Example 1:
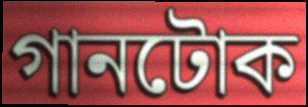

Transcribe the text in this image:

গানটোক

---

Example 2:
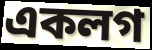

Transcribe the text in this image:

একলগ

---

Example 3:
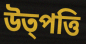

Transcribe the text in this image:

উত্পত্তি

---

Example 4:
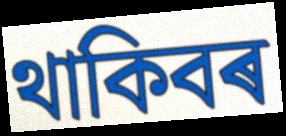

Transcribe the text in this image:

থাকিবৰ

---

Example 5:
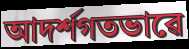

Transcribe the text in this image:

আদৰ্শগতভাৱে